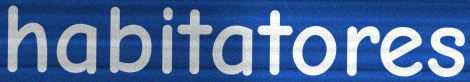
habitatores